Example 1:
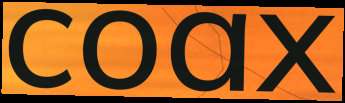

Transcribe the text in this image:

coax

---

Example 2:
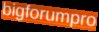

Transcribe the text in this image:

bigforumpro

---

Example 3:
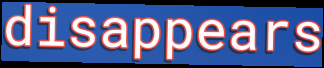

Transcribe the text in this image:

disappears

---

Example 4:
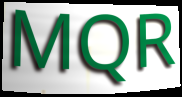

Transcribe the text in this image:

MQR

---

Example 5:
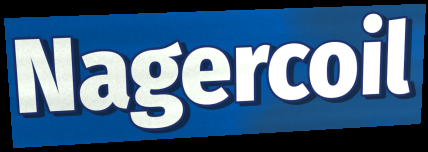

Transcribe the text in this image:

Nagercoil